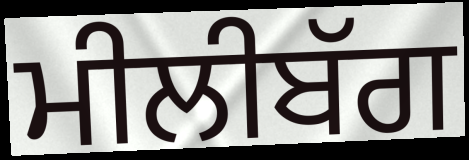
ਮੀਲੀਬੱਗ